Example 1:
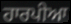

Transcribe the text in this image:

ਹਾਰਪੀਆ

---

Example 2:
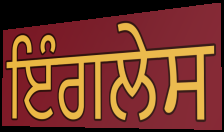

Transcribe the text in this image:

ਇੰਗਲੇਸ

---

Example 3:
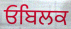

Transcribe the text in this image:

ਓਬਿਲਕ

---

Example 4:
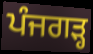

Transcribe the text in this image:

ਪੰਜਗੜ੍ਹ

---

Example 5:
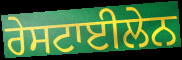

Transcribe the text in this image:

ਰੇਸਟਾਈਲੇਨ